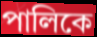
পালিকে